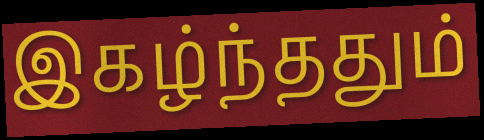
இகழ்ந்ததும்